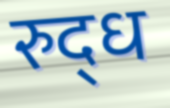
रुद्ध